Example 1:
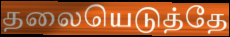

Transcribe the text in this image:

தலையெடுத்தே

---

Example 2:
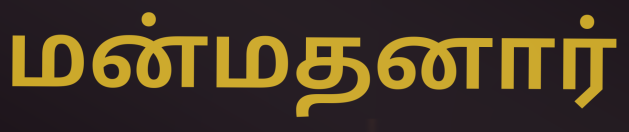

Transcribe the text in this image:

மன்மதனார்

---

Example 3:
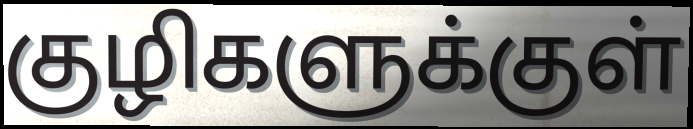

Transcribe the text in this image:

குழிகளுக்குள்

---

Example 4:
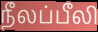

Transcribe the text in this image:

நீலப்பீலி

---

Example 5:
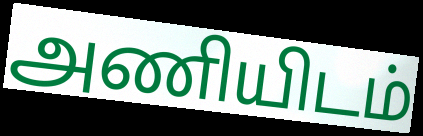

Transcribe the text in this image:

அணியிடம்